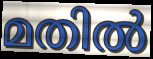
മതിൽ